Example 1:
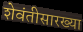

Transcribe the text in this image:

शेवंतीसारख्या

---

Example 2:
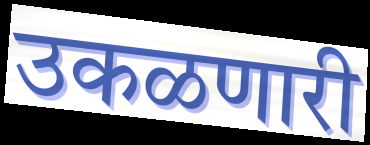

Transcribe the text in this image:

उकळणारी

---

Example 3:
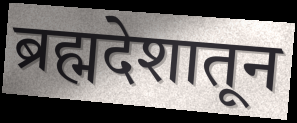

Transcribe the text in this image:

ब्रह्मदेशातून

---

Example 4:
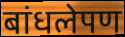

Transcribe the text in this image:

बांधलेपण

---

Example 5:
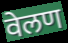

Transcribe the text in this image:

वेलण